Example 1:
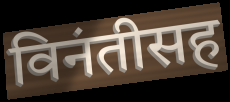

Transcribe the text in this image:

विनंतीसह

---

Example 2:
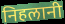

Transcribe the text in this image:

निहलानी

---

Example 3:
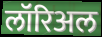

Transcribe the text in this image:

लॉरिअल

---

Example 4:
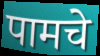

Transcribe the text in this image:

पामचे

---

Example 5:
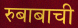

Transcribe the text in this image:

रुबाबाची